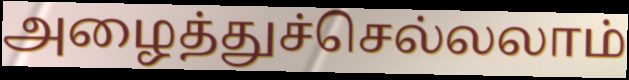
அழைத்துச்செல்லலாம்